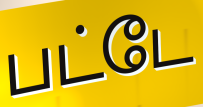
பட்டே